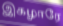
இகழாரே